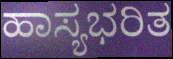
ಹಾಸ್ಯಭರಿತ